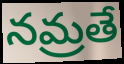
నమ్రతే